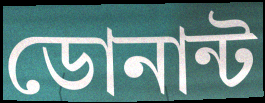
ডোনান্ট